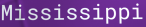
Mississippi